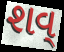
શવ્